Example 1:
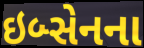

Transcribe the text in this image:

ઇબ્સેનના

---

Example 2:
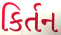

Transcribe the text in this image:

કિર્તન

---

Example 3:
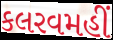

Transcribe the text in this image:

કલરવમહીં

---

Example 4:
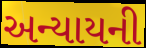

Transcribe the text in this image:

અન્યાયની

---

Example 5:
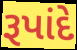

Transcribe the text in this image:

રૂપાંદે